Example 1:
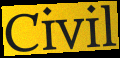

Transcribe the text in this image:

Civil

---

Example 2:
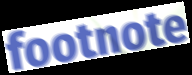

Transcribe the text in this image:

footnote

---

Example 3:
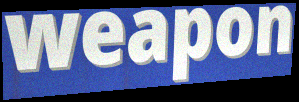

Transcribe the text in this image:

weapon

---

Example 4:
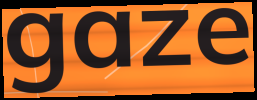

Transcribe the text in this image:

gaze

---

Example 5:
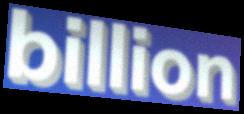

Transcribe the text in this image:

billion